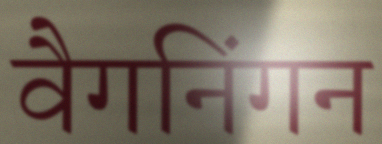
वैगनिंगन